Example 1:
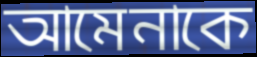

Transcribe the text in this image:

আমেনাকে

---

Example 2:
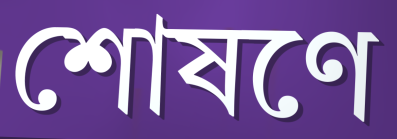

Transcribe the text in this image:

শোষণে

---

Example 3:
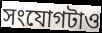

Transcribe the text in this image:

সংযোগটাও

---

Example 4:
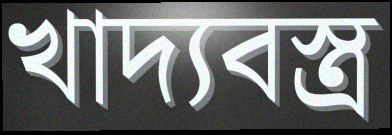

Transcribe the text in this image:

খাদ্যবস্ত্র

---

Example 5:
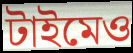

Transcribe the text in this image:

টাইমেও